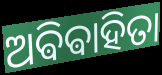
ଅଵିଵାହିତା